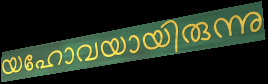
യഹോവയായിരുന്നു